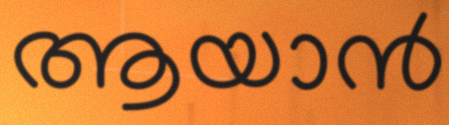
ആയാൻ